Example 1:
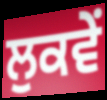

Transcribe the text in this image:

ਲੁਕਵੇਂ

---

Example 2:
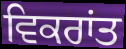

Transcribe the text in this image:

ਵਿਕਰਾਂਤ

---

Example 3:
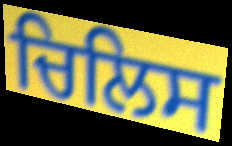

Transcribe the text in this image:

ਚਿਲਿਸ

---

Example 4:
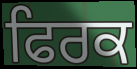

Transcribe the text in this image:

ਫਿਰਕ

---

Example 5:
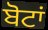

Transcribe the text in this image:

ਬੋਟਾਂ